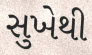
સુખેથી